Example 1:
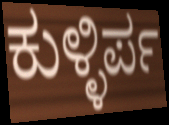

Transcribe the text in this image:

ಕುಳ್ಳಿರ್ಪ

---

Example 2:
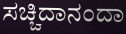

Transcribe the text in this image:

ಸಚ್ಚಿದಾನಂದಾ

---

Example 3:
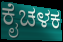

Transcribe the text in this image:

ಕೈಚಳಕ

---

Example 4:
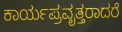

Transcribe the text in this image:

ಕಾರ್ಯಪ್ರವೃತ್ತರಾದರೆ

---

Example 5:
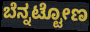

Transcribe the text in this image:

ಬೆನ್ನಟ್ಟೋಣ